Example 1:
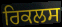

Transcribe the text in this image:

ਰਿਕਲਸ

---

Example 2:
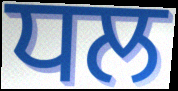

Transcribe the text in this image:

ਧਲ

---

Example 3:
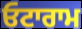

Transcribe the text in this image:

ਓਟਾਰਾਮ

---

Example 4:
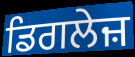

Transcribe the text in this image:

ਡਿਗਲੇਜ਼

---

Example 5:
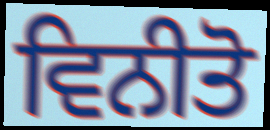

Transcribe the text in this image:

ਵਿਨੀਤੋ